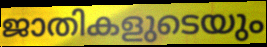
ജാതികളുടെയും